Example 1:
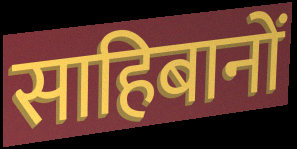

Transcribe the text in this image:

साहिबानों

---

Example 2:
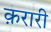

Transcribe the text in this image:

क़रारी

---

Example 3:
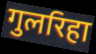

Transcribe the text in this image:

गुलरिहा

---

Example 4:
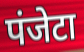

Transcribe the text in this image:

पंजेटा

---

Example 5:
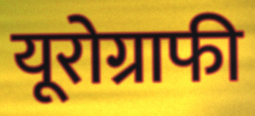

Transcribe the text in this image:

यूरोग्राफी